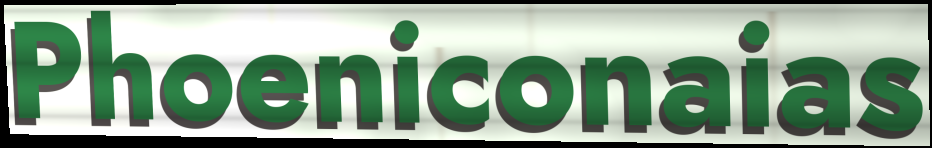
Phoeniconaias